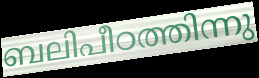
ബലിപീഠത്തിന്നു